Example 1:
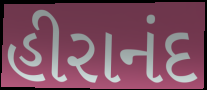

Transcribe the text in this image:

હીરાનંદ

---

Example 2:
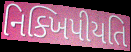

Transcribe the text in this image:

નિક્ખિપીયતિ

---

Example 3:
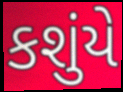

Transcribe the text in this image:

કશુંયે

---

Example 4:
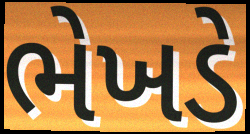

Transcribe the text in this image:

ભેખડે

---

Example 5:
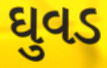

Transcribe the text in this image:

ઘુવડ